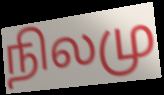
நிலமு